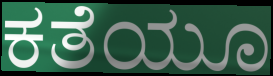
ಕತೆಯೂ